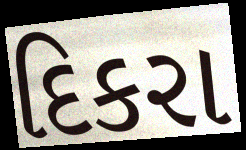
દિકરા